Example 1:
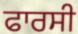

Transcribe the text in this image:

ਫਾਰਸੀ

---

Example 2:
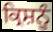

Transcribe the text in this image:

ਕ੍ਰਿਸ਼ਨੂੰ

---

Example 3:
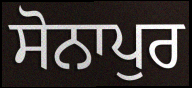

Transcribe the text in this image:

ਸੋਨਾਪੁਰ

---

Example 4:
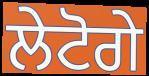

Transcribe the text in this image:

ਲੇਟੋਗੇ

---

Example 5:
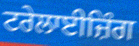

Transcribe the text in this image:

ਟਰੇਲਾਈਜ਼ਿੰਗ